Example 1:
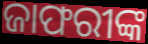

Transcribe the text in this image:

ଜାଫରୀଙ୍କ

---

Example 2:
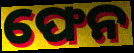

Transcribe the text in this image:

ଫେନ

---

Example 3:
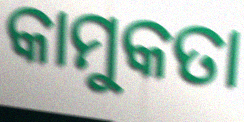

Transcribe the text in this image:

କାମୁକତା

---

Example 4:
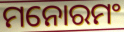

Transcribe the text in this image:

ମନୋରମଂ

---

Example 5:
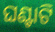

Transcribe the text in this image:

ଘଣ୍ଟାଟି